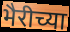
भैरीच्या